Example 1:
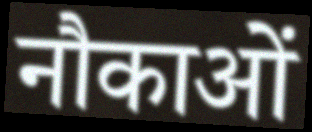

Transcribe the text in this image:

नौकाओं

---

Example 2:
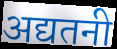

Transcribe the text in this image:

अद्यतनी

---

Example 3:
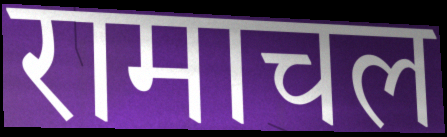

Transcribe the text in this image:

रामाचल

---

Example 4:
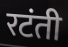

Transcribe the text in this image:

रटंती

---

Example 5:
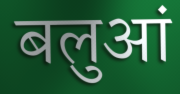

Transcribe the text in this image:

बलुआं